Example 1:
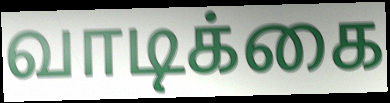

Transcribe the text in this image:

வாடிக்கை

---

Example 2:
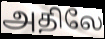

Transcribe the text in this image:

அதிலே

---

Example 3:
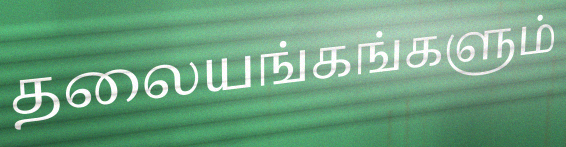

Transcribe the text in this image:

தலையங்கங்களும்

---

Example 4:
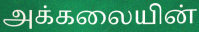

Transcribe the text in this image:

அக்கலையின்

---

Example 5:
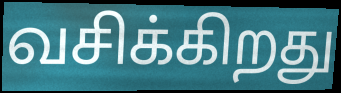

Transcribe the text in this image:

வசிக்கிறது